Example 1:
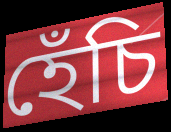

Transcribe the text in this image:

হেঁচি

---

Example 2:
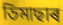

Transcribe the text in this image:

ডিমাছাৰ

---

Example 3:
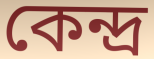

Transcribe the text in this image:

কেন্দ্ৰ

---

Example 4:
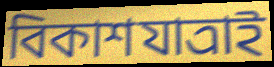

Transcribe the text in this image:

বিকাশযাত্ৰাই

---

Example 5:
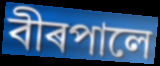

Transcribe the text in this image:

বীৰপালে